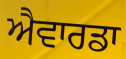
ਐਵਾਰਡਾ